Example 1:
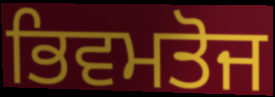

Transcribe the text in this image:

ਭਿਵਮਤੋਜ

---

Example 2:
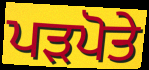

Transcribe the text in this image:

ਪੜਪੋਤੇ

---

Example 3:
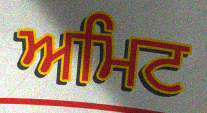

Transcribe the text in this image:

ਅਮਿਟ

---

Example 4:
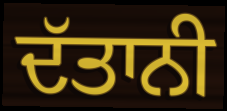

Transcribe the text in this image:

ਦੱਤਾਨੀ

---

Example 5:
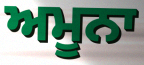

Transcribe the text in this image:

ਅਮੂਨਾ